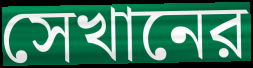
সেখানের